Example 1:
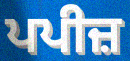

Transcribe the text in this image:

ਪਪੀਜ਼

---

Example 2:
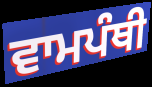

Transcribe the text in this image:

ਵਾਮਪੰਥੀ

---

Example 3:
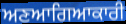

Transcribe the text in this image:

ਅਣਆਗਿਆਕਾਰੀ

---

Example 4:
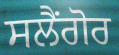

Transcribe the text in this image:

ਸਲੈਂਗੋਰ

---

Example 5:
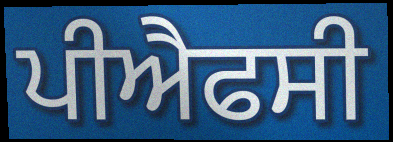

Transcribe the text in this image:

ਪੀਐਫਸੀ